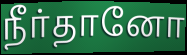
நீர்தானோ